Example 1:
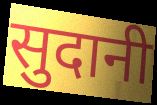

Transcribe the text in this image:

सुदानी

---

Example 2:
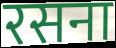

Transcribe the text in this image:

रसना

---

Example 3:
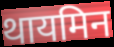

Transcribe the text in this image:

थायमिन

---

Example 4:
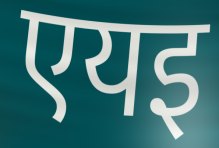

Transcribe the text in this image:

एयइ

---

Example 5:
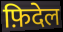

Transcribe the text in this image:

फ़िदेल